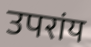
उपरांय